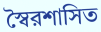
স্বৈরশাসিত